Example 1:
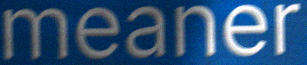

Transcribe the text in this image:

meaner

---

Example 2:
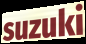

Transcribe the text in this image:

suzuki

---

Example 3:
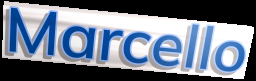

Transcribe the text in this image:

Marcello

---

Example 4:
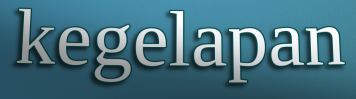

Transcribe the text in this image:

kegelapan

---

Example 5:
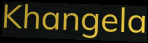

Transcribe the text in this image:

Khangela